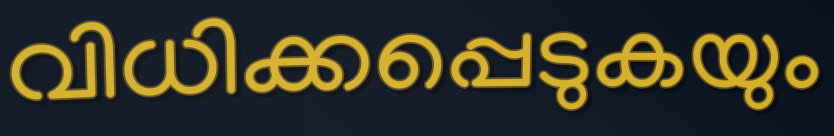
വിധിക്കപ്പെടുകയും